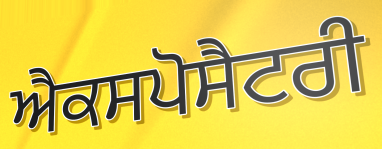
ਐਕਸਪੋਸੈਟਰੀ